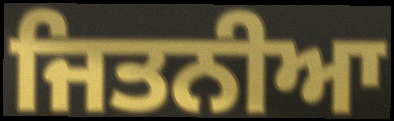
ਜਿਤਨੀਆ